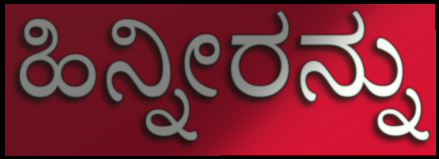
ಹಿನ್ನೀರನ್ನು